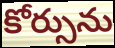
కోర్సును